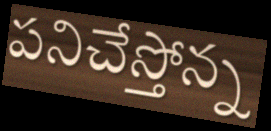
పనిచేస్తోన్న